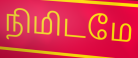
நிமிடமே